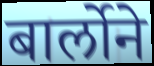
बार्लोने